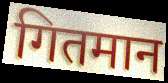
गितमान